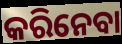
କରିନେବା